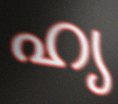
ഹ്യ